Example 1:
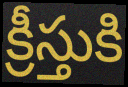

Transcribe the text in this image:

క్రీస్తుకి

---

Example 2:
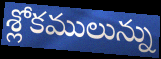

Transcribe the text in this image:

శ్లోకములున్ను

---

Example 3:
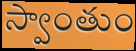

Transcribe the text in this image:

స్వాంతుం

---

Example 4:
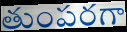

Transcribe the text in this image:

తుంపరగా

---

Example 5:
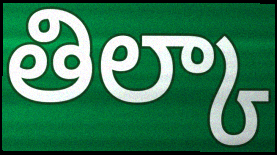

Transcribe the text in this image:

తిల్కా